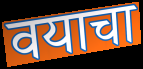
वयाचा